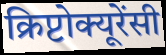
क्रिप्टोक्यूरेंसी